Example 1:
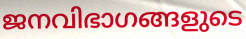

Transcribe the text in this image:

ജനവിഭാഗങ്ങളുടെ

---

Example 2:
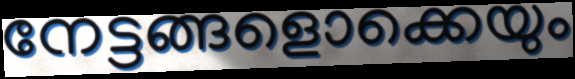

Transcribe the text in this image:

നേട്ടങ്ങളൊക്കെയും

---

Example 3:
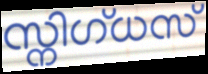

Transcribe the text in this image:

സ്നിഗ്ധസ്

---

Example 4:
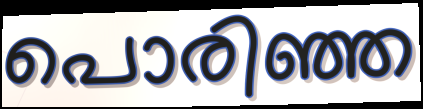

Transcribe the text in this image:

പൊരിഞ്ഞ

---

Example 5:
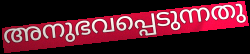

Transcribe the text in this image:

അനുഭവപ്പെടുന്നതു